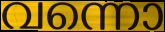
വന്നൊ